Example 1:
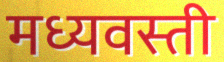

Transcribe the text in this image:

मध्यवस्ती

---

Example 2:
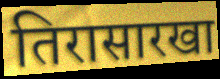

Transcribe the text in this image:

तिरासारखा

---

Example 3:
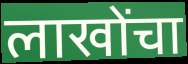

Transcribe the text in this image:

लाखोंचा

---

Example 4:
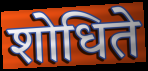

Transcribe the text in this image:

शोधिते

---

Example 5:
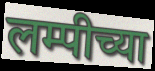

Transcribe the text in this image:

लम्पीच्या